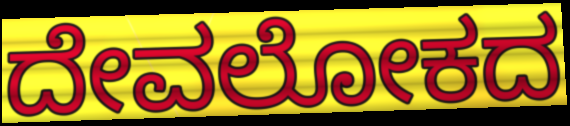
ದೇವಲೋಕದ